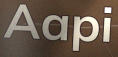
Aapi